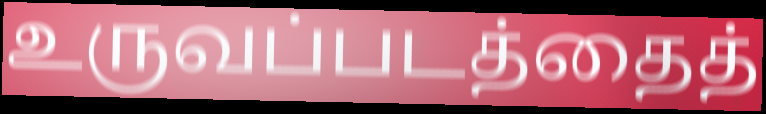
உருவப்படத்தைத்